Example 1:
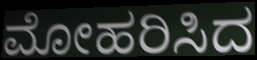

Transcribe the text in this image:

ಮೋಹರಿಸಿದ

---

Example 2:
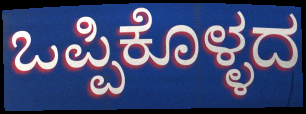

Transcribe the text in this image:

ಒಪ್ಪಿಕೊಳ್ಳದ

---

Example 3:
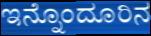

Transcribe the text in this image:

ಇನ್ನೊಂದೂರಿನ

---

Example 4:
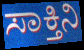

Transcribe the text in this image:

ಸಾಕ್ತಿನಿ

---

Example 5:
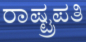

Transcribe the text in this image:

ರಾಷ್ಟ್ರಪತಿ